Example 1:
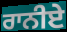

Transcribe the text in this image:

ਰਾਨੀਏ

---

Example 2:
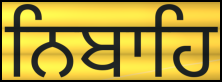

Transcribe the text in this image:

ਨਿਬਾਹਿ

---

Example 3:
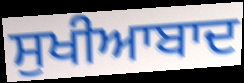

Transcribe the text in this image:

ਸੁਖੀਆਬਾਦ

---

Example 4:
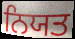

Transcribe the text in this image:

ਨਿਯਤ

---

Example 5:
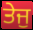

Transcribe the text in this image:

ਤੇਜੁ